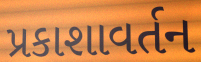
પ્રકાશાવર્તન